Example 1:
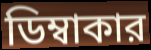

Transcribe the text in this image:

ডিম্বাকার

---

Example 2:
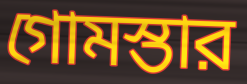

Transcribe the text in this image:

গোমস্তার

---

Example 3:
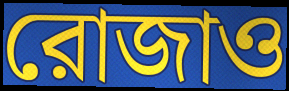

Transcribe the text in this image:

রোজাও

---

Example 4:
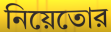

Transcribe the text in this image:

নিয়েতোর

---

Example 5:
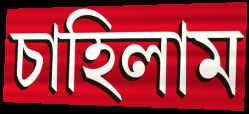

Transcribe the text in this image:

চাহিলাম